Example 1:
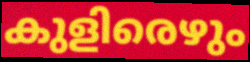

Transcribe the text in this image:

കുളിരെഴും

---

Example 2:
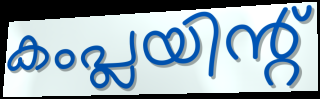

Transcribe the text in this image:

കംപ്ലയിന്റ്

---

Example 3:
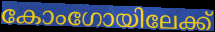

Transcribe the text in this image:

കോംഗോയിലേക്ക്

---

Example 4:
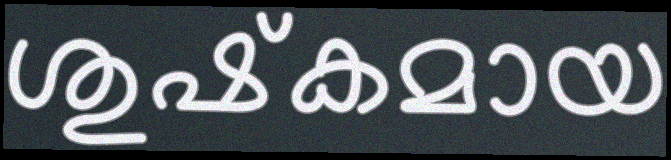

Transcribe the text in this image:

ശുഷ്‌കമായ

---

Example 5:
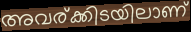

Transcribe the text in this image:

അവര്ക്കിടയിലാണ്